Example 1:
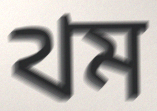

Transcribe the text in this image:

থম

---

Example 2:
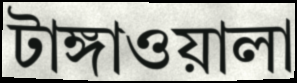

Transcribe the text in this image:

টাঙ্গাওয়ালা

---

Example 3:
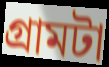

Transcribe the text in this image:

গ্রামটা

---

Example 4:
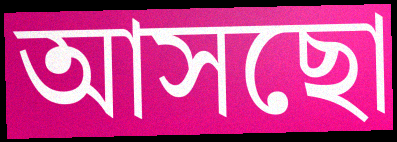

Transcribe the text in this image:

আসছো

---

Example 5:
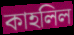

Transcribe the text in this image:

কাহলিল